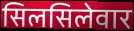
सिलसिलेवार